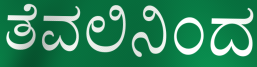
ತೆವಲಿನಿಂದ